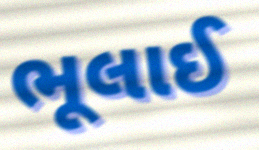
ભૂલાઈ